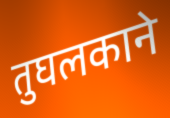
तुघलकाने